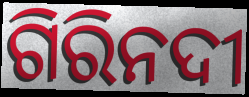
ଗିରିନଦୀ